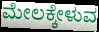
ಮೇಲಕ್ಕೇಳುವ